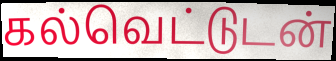
கல்வெட்டுடன்